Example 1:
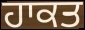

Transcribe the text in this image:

ਹਾਕਤ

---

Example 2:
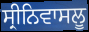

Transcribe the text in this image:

ਸ੍ਰੀਨਿਵਾਸਲੂ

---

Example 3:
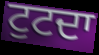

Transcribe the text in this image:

ਟੁਟਦਾ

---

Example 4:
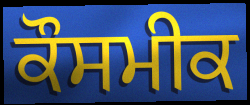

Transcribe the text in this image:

ਕੌਸਮੀਕ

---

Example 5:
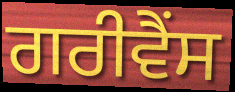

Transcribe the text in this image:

ਗਰੀਵੈਂਸ